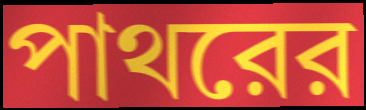
পাথরের